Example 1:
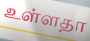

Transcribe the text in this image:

உள்ளதா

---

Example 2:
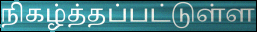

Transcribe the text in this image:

நிகழ்த்தப்பட்டுள்ள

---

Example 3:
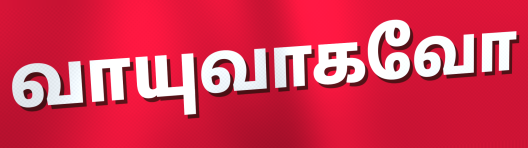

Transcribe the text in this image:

வாயுவாகவோ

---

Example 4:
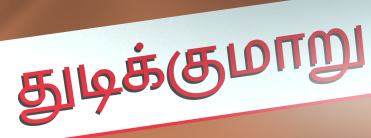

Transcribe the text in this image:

துடிக்குமாறு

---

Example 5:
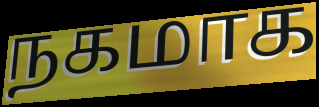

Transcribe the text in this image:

நகமாக